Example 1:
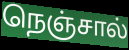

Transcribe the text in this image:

நெஞ்சால்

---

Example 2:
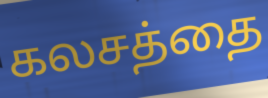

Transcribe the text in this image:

கலசத்தை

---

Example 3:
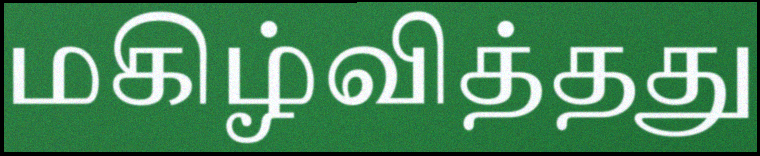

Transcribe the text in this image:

மகிழ்வித்தது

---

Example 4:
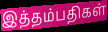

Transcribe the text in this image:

இத்தம்பதிகள்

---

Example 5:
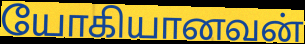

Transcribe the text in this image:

யோகியானவன்